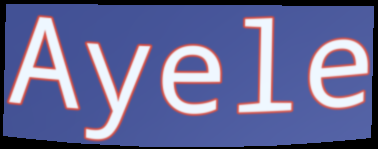
Ayele